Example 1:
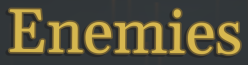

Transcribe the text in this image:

Enemies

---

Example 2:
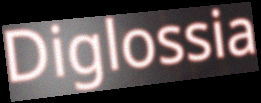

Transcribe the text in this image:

Diglossia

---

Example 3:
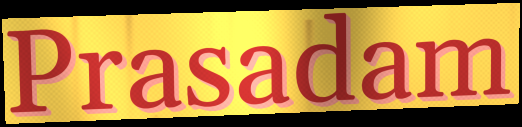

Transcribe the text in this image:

Prasadam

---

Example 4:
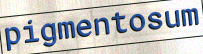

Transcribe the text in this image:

pigmentosum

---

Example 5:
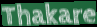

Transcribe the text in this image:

Thakare